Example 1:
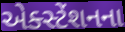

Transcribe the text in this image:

એક્સ્ટેંશનના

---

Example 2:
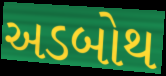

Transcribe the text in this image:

અડબોથ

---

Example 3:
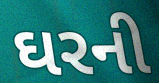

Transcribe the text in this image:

ઘરની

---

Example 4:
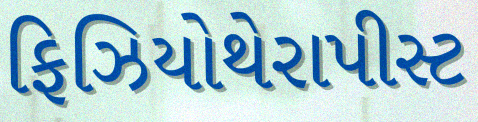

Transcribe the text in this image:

ફિઝિયોથેરાપીસ્ટ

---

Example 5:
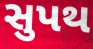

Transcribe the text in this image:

સુપથ